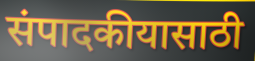
संपादकीयासाठी